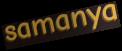
samanya